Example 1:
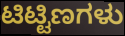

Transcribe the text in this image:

ಟಿಟ್ಟಿಣಗಳು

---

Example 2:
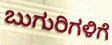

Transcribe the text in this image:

ಬುಗುರಿಗಳಿಗೆ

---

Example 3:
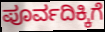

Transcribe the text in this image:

ಪೂರ್ವದಿಕ್ಕಿಗೆ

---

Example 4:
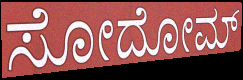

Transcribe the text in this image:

ಸೋದೋಮ್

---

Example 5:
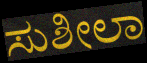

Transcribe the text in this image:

ಸುಶೀಲಾ